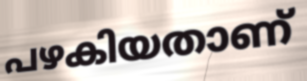
പഴകിയതാണ്